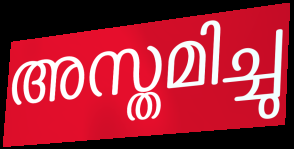
അസ്തമിച്ചു